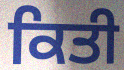
ਕਿਤੀ